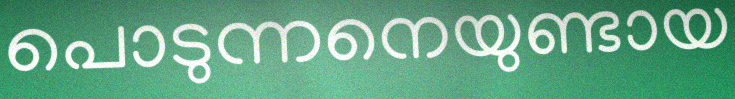
പൊടുന്നനെയുണ്ടായ